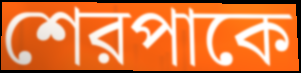
শেরপাকে